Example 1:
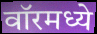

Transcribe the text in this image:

वॉरमध्ये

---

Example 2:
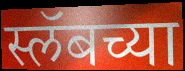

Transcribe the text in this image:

स्लॅबच्या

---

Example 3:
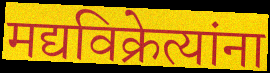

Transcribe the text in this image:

मद्यविक्रेत्यांना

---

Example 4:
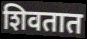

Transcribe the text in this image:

शिवतात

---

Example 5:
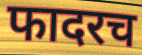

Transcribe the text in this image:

फादरच